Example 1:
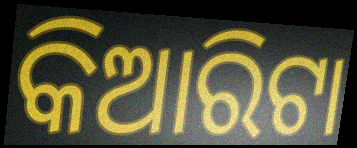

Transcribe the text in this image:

କିଆରିଟା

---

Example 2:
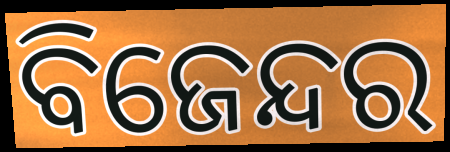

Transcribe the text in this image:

ବିଜେନ୍ଦର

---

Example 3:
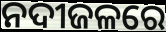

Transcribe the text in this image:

ନଦୀଜଳରେ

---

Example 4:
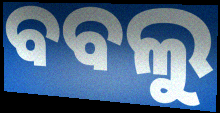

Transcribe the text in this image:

ବବଲୁ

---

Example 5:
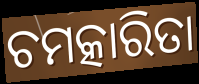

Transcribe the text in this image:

ଚମତ୍କାରିତା